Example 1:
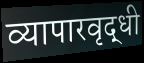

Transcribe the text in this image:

व्यापारवृद्धी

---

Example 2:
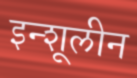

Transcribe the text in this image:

इन्शूलीन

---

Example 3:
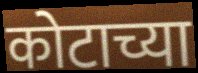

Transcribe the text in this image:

कोटाच्या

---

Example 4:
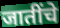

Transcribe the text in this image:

जातींचे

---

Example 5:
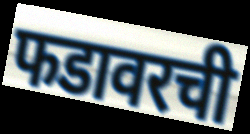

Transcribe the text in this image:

फडावरची